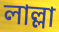
লাল্লা